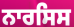
ਨਾਰਸਿਸ